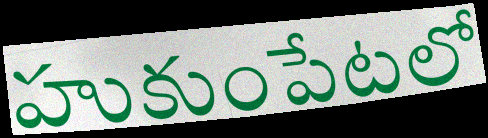
హుకుంపేటలో